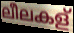
ലീലകള്